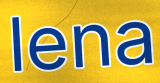
lena